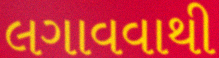
લગાવવાથી